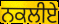
ਨਕਲੀਏ